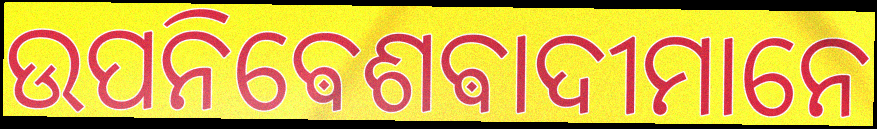
ଉପନିଵେଶଵାଦୀମାନେ